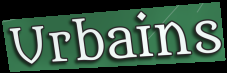
Urbains